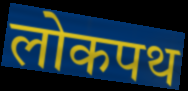
लोकपथ